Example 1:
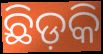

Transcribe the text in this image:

ଛିଡ଼କି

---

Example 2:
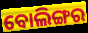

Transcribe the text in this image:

ବୋଲିଙ୍ଗର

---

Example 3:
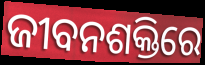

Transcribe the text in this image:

ଜୀବନଶକ୍ତିରେ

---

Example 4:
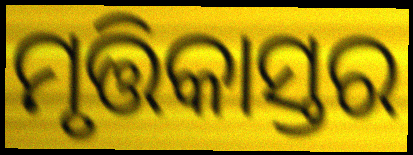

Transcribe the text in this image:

ମୃତ୍ତିକାସ୍ତର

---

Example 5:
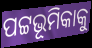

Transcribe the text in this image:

ପଟ୍ଟଭୂମିକାକୁ